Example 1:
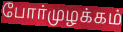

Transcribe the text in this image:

போர்முழக்கம்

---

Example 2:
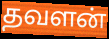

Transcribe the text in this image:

தவளன்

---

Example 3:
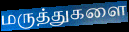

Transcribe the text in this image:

மருத்துகளை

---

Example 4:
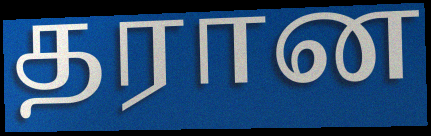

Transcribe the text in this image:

தரான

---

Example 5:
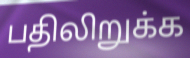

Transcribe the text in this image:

பதிலிறுக்க